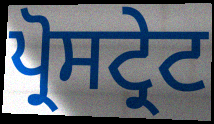
ਪ੍ਰੋਸਟ੍ਰੇਟ